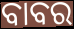
ବାବର